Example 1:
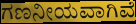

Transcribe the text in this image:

ಗಣನೀಯವಾಗಿವೆ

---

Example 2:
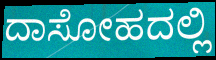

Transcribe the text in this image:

ದಾಸೋಹದಲ್ಲಿ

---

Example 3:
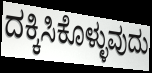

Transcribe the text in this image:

ದಕ್ಕಿಸಿಕೊಳ್ಳುವುದು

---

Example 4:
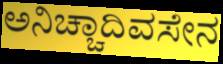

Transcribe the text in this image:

ಅನಿಚ್ಚಾದಿವಸೇನ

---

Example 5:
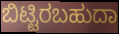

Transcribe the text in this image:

ಬಿಟ್ಟಿರಬಹುದಾ